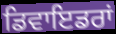
ਡਿਵਾਇਡਰਾਂ